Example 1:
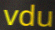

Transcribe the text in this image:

vdu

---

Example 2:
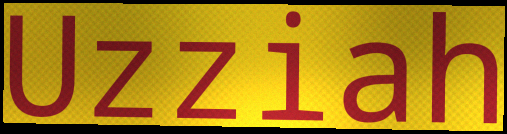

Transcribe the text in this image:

Uzziah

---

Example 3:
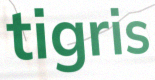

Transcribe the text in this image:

tigris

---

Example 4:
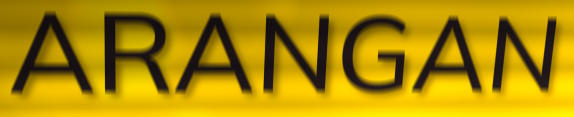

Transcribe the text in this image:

ARANGAN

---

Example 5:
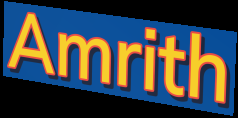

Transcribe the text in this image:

Amrith